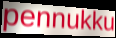
pennukku